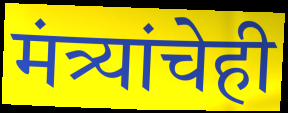
मंत्र्यांचेही